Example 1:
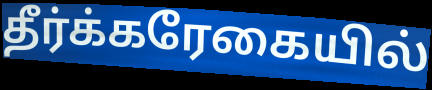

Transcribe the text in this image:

தீர்க்கரேகையில்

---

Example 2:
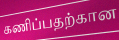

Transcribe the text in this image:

கணிப்பதற்கான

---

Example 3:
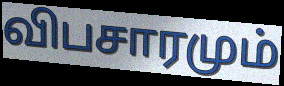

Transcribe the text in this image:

விபசாரமும்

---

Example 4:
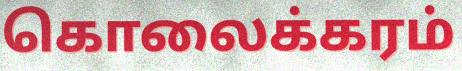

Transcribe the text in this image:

கொலைக்கரம்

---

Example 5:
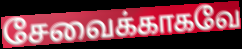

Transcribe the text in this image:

சேவைக்காகவே